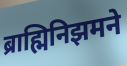
ब्राह्मिनिझमने